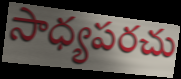
సాధ్యపరచు